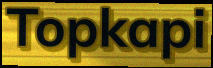
Topkapi